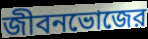
জীবনভোজের